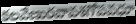
కలవేణురవావశగోపవధూ